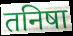
तनिषा